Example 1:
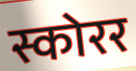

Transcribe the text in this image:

स्कोरर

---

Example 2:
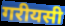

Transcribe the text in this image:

गरीयसी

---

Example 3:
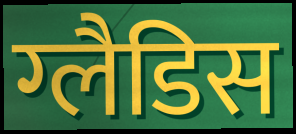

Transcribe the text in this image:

ग्लैडिस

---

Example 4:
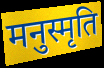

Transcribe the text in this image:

मनुस्मृति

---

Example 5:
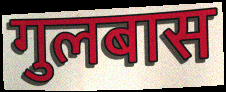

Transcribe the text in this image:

गुलबास